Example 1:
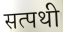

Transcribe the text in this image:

सत्पथी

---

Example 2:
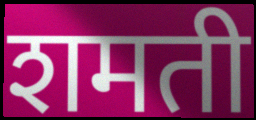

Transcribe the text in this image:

शमती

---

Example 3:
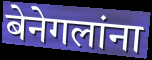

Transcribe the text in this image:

बेनेगलांना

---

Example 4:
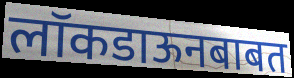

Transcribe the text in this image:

लॉकडाऊनबाबत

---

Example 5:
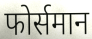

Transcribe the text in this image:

फोर्समान